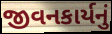
જીવનકાર્યનું